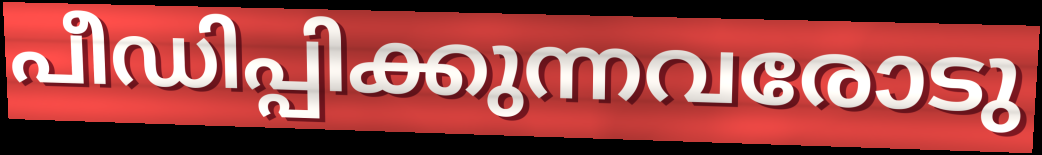
പീഡിപ്പിക്കുന്നവരോടു